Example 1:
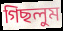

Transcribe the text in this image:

গিছলুম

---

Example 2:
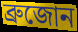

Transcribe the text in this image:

ব্রুজোন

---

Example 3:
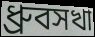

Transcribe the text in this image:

ধ্রুবসখা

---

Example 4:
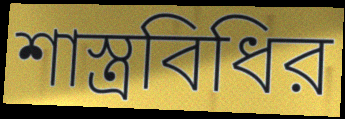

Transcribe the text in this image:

শাস্ত্রবিধির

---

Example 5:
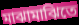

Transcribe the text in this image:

মাঝামাঝিতে